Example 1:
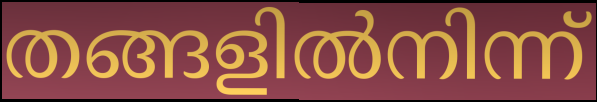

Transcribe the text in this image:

തങ്ങളിൽനിന്ന്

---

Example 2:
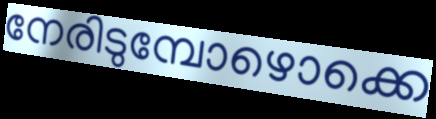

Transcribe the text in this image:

നേരിടുമ്പോഴൊക്കെ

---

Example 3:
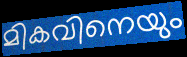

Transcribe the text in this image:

മികവിനെയും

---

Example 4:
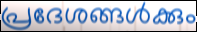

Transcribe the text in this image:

പ്രദേശങ്ങൾക്കും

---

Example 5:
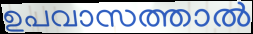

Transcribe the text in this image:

ഉപവാസത്താൽ